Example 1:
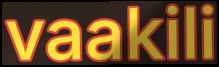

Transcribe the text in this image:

vaakili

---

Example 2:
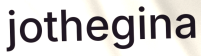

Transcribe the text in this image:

jothegina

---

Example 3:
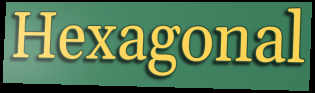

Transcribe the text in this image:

Hexagonal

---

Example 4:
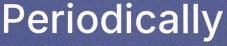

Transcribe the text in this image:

Periodically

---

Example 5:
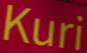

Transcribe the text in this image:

Kuri